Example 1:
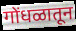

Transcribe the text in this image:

गोंधळातून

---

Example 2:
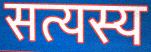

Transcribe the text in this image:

सत्यस्य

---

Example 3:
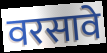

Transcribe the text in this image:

वरसावे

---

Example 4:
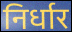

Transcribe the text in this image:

निर्धार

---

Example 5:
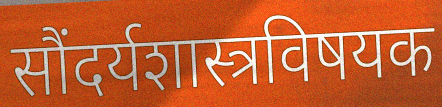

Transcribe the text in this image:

सौंदर्यशास्त्रविषयक